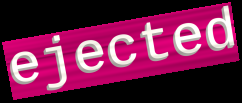
ejected